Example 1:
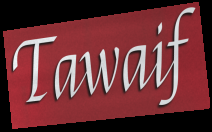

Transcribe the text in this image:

Tawaif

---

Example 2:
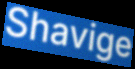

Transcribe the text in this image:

Shavige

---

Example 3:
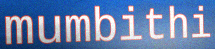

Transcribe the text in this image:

mumbithi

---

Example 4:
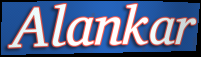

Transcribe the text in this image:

Alankar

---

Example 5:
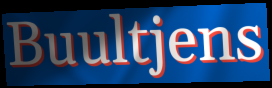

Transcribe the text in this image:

Buultjens